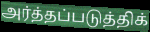
அர்த்தப்படுத்திக்